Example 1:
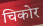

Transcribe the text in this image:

चिकोर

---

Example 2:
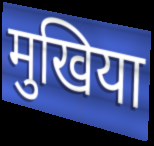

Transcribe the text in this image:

मुखिया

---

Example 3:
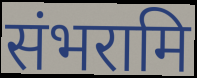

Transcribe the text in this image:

संभरामि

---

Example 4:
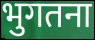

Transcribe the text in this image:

भुगतना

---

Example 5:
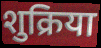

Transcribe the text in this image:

शुक्रिया